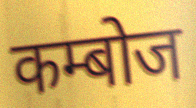
कम्बोज